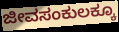
ಜೀವಸಂಕುಲಕ್ಕೂ